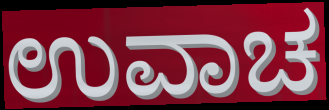
ಉವಾಚ